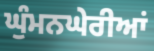
ਘੁੰਮਨਘੇਰੀਆਂ